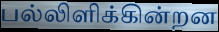
பல்லிளிக்கின்றன